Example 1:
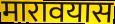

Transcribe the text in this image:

मारावयास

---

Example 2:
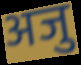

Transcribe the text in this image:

अजु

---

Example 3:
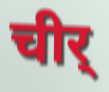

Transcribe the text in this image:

चीर्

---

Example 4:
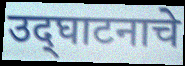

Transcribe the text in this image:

उद्‌घाटनाचे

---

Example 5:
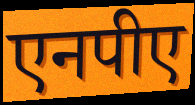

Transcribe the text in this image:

एनपीए